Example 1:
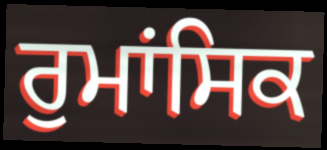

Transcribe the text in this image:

ਰੁਮਾਂਸਿਕ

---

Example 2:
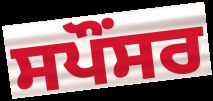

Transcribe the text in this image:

ਸਪੌਂਸਰ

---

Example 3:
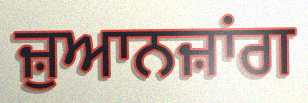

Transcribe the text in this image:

ਜ਼ੁਆਨਜ਼ਾਂਗ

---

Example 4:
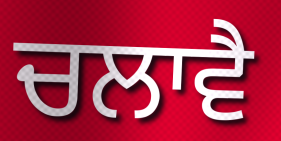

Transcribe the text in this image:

ਚਲਾਵੈ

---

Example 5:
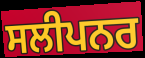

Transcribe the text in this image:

ਸਲੀਪਨਰ